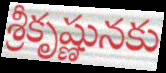
శ్రీకృష్ణునకు